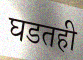
घडतही